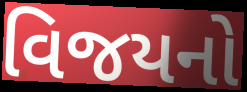
વિજયનો